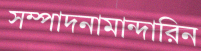
সম্পাদনামান্দারিন